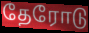
தேரோடு